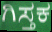
ಗಿಸ್ತಕ